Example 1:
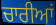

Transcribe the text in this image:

ਚਾਰੀਆਂ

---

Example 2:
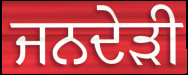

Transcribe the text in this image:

ਜਨਦੇੜੀ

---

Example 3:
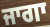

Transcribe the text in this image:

ਜਾਗਾ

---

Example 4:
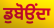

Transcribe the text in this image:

ਡੁਬੋਉਂਦਾ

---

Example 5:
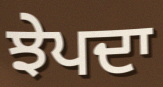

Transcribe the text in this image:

ਝੇਪਦਾ